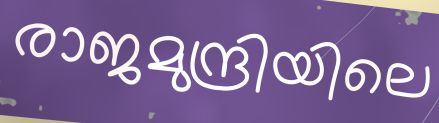
രാജമുന്ദ്രിയിലെ